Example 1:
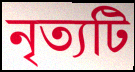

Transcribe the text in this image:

নৃত্যটি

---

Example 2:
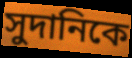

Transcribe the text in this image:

সুদানিকে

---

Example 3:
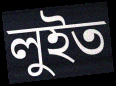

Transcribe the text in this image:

লুইত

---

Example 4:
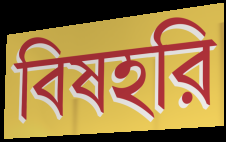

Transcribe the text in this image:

বিষহরি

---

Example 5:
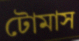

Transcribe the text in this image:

টোমাস